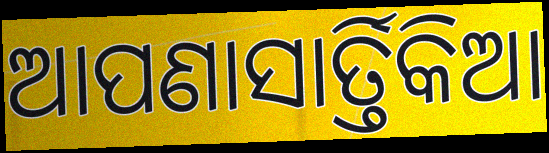
ଆପଣାସାର୍ତ୍ତିକିଆ